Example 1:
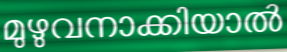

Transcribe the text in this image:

മുഴുവനാക്കിയാൽ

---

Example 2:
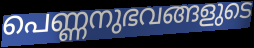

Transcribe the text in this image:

പെണ്ണനുഭവങ്ങളുടെ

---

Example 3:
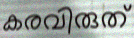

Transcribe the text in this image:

കരവിരുത്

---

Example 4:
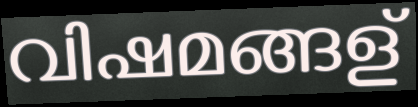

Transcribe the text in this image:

വിഷമങ്ങള്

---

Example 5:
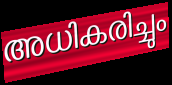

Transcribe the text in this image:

അധികരിച്ചും